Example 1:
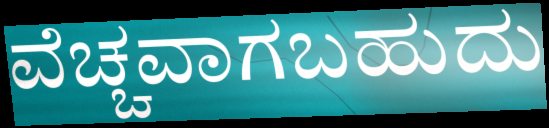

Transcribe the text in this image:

ವೆಚ್ಚವಾಗಬಹುದು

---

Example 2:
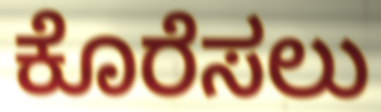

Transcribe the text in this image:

ಕೊರೆಸಲು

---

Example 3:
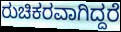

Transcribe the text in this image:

ರುಚಿಕರವಾಗಿದ್ದರೆ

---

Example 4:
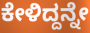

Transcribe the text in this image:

ಕೇಳಿದ್ದನ್ನೇ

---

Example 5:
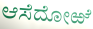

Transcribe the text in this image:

ಆಸೆದೋಱೆ